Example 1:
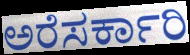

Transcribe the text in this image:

ಅರೆಸರ್ಕಾರಿ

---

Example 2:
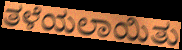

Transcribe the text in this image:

ತಳೆಯಲಾಯಿತು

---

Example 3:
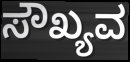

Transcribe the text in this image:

ಸೌಖ್ಯವ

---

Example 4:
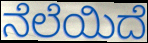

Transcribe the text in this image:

ನೆಲೆಯಿದೆ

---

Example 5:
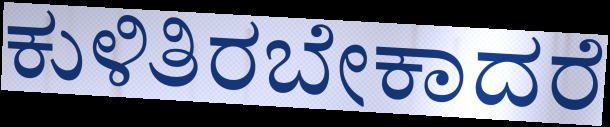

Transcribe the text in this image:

ಕುಳಿತಿರಬೇಕಾದರೆ